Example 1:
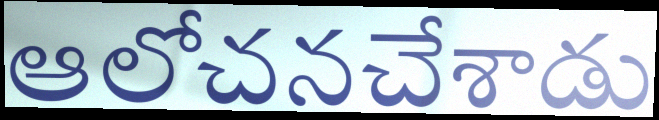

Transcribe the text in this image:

ఆలోచనచేశాడు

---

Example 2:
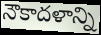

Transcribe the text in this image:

నౌకాదళాన్ని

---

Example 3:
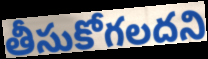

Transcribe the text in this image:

తీసుకోగలదని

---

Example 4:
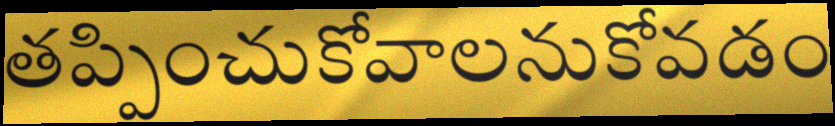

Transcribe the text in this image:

తప్పించుకోవాలనుకోవడం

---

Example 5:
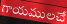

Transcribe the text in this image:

గాయములచే